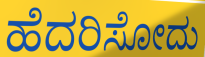
ಹೆದರಿಸೋದು